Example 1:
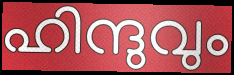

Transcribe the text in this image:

ഹിന്ദുവും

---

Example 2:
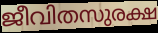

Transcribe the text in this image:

ജീവിതസുരക്ഷ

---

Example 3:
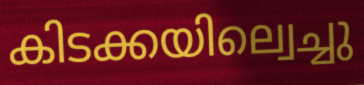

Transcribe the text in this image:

കിടക്കയില്വെച്ചു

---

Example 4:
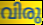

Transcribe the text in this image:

വിരു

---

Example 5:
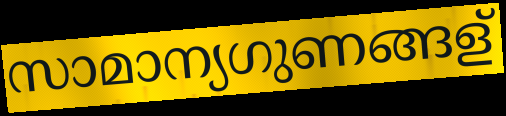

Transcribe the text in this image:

സാമാന്യഗുണങ്ങള്